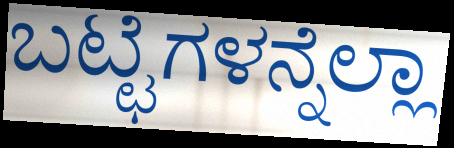
ಬಟ್ಟೆಗಳನ್ನೆಲ್ಲಾ